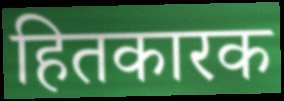
हितकारक